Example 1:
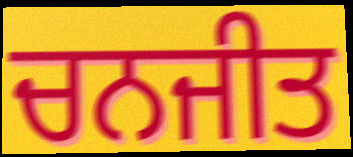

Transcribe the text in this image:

ਚਨਜੀਤ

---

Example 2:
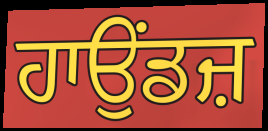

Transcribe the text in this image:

ਹਾਉਂਡਜ਼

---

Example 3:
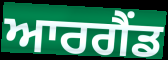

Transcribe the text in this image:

ਆਰਗੈਂਡ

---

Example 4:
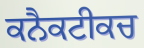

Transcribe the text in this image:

ਕਨੈਕਟੀਕਚ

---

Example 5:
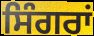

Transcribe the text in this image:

ਸਿੰਗਰਾਂ